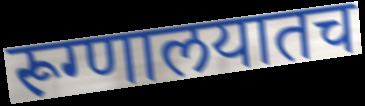
रूग्णालयातच